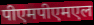
पीएमपीएमएल